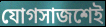
যোগসাজশেই